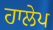
ਹਾਲੇਪ